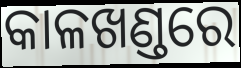
କାଳଖଣ୍ଡରେ